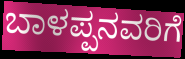
ಬಾಳಪ್ಪನವರಿಗೆ